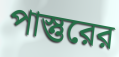
পাস্তুরের